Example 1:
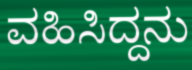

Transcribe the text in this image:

ವಹಿಸಿದ್ದನು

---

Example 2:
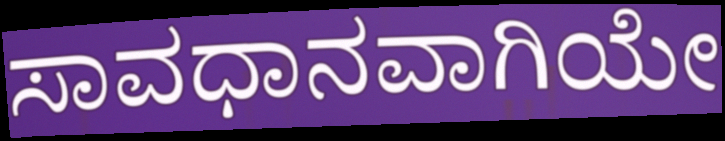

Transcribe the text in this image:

ಸಾವಧಾನವಾಗಿಯೇ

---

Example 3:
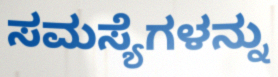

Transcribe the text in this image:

ಸಮಸ್ಯೆಗಳನ್ನು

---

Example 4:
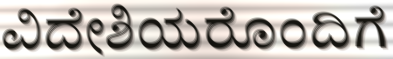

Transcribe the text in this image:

ವಿದೇಶಿಯರೊಂದಿಗೆ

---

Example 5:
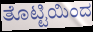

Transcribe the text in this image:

ತೊಟ್ಟಿಯಿಂದ